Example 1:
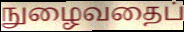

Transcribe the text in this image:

நுழைவதைப்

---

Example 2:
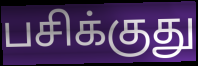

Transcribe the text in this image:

பசிக்குது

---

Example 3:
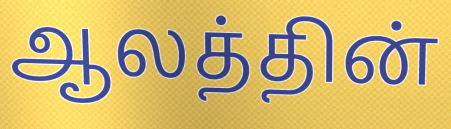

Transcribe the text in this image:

ஆலத்தின்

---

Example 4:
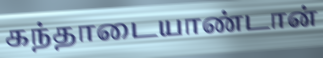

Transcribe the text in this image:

கந்தாடையாண்டான்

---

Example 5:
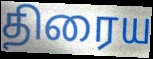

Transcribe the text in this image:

திரைய